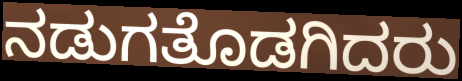
ನಡುಗತೊಡಗಿದರು